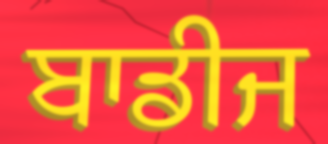
ਬਾਡੀਜ